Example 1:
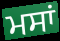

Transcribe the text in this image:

ਮਸਾਂ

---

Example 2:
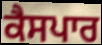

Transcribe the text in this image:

ਕੈਸਪਾਰ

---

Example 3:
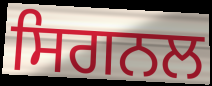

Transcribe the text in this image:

ਸਿਗਨਲ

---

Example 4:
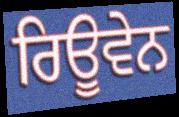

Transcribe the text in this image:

ਰਿਊਵੇਨ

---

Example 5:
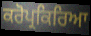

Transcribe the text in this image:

ਕਰੋਪ੍ਰਕਿਰਿਆ